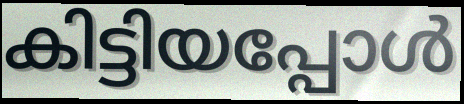
കിട്ടിയപ്പോൾ